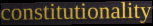
constitutionality